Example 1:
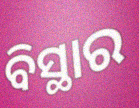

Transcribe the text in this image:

ବିସ୍ଥାର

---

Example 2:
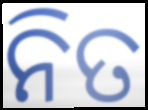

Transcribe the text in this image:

ନିତ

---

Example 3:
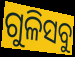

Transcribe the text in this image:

ଗୁଳିସବୁ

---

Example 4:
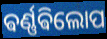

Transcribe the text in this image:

ଵର୍ଣ୍ଣଵିଲୋପ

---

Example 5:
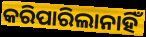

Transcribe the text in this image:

କରିପାରିଲାନାହିଁ